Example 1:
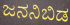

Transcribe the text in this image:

ಜನನಿಬಿಡ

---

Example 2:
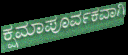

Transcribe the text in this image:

ಕ್ಷಮಾಪೂರ್ವಕವಾಗಿ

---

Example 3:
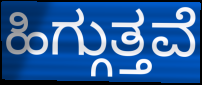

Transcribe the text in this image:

ಹಿಗ್ಗುತ್ತವೆ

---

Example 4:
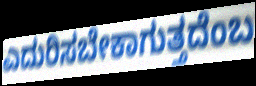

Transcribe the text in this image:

ಎದುರಿಸಬೇಕಾಗುತ್ತದೆಂಬ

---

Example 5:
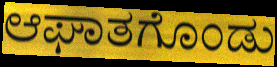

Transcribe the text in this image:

ಆಘಾತಗೊಂಡು